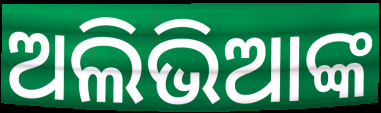
ଅଲିଭିଆଙ୍କ